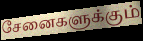
சேனைகளுக்கும்